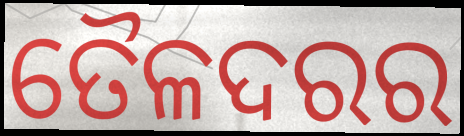
ତୈଳଦରର